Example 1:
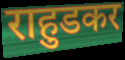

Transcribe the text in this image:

राहुडकर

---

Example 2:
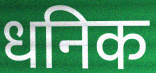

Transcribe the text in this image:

धनिक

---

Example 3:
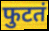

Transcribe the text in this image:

फुटतं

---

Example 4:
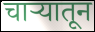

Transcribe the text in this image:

चाऱ्यातून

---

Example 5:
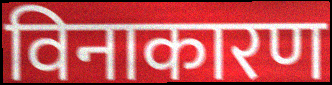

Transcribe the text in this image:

विनाकारण